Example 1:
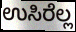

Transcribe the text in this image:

ಉಸಿರೆಲ್ಲ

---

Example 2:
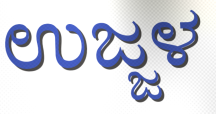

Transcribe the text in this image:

ಉಜ್ಜಳ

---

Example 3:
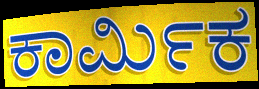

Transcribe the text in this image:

ಕಾರ್ಮಿಕ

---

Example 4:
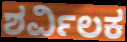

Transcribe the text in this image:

ಶರ್ವಿಲಕ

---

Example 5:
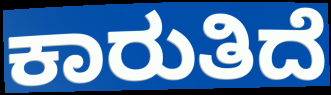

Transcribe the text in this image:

ಕಾರುತಿದೆ